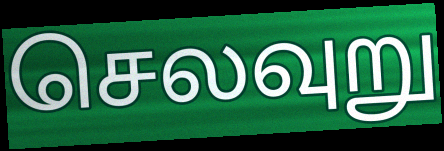
செலவுறு